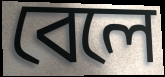
বেলে